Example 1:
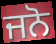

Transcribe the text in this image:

ਜਨੋ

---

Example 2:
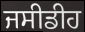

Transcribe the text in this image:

ਜਸੀਡੀਹ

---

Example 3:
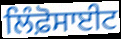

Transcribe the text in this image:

ਲਿੰਫ਼ੋਸਾਈਟ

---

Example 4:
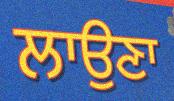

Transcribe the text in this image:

ਲਾਉਣਾ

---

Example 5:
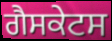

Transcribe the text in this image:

ਗੈਸਕੇਟਸ